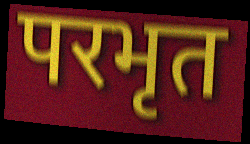
परभृत